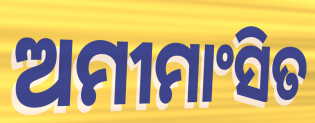
ଅମୀମାଂସିତ